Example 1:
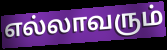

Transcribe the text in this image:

எல்லாவரும்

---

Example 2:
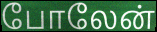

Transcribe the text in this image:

போலேன்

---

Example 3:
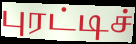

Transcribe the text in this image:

புரட்டிச்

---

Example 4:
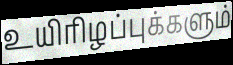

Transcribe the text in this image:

உயிரிழப்புக்களும்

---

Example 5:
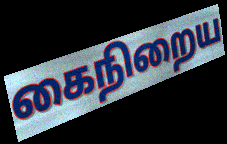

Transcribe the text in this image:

கைநிறைய